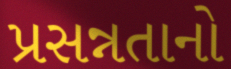
પ્રસન્નતાનો